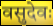
वसुदेवः